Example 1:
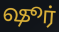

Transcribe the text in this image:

ஷூர்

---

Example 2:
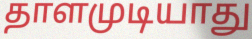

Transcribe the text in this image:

தாளமுடியாது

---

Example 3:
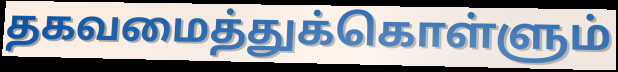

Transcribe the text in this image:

தகவமைத்துக்கொள்ளும்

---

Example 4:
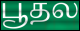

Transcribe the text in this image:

பூதல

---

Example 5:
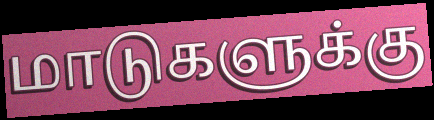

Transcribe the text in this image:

மாடுகளுக்கு